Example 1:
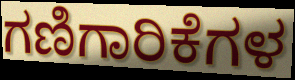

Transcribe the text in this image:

ಗಣಿಗಾರಿಕೆಗಳ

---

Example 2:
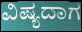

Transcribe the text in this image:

ವಿಷ್ಯದಾಗ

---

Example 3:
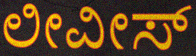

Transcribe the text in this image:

ಲೀವೀಸ್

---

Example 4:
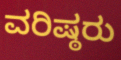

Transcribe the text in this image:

ವರಿಷ್ಠರು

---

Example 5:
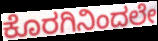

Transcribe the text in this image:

ಕೊರಗಿನಿಂದಲೇ